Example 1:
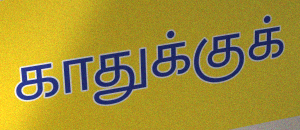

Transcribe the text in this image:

காதுக்குக்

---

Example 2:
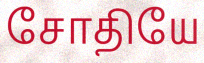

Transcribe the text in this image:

சோதியே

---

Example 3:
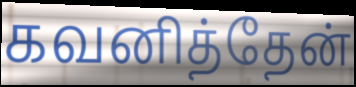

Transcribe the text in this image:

கவனித்தேன்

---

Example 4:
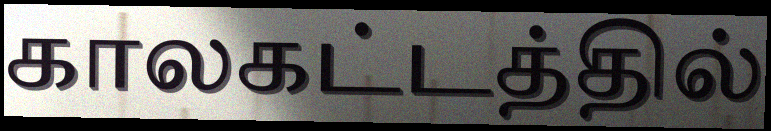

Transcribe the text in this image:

காலகட்டத்தில்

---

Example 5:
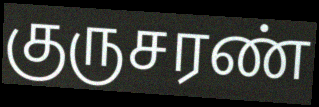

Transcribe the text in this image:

குருசரண்